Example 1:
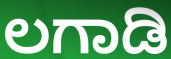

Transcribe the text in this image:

ಲಗಾಡಿ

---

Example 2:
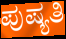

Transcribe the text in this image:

ಪುಷ್ಯತಿ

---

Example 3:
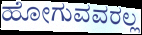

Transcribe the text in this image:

ಹೋಗುವವರಲ್ಲ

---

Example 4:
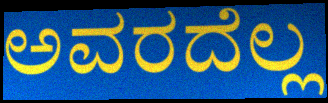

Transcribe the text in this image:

ಅವರದೆಲ್ಲ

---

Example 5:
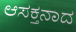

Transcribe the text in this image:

ಆಸಕ್ತನಾದ